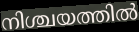
നിശ്ചയത്തിൽ